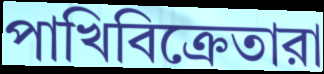
পাখিবিক্রেতারা